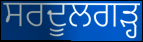
ਸਰਦੂਲਗੜ੍ਹ